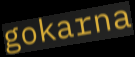
gokarna